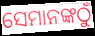
ସେମାନଙ୍କଠୁଁ